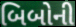
બિબોની